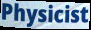
Physicist